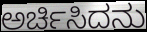
ಅರ್ಚಿಸಿದನು